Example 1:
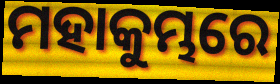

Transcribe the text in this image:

ମହାକୁମ୍ଭରେ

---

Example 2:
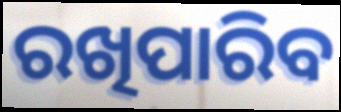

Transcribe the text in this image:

ରଖିପାରିବ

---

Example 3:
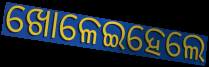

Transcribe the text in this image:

ଖୋଳେଇହେଲେ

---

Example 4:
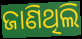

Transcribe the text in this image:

ଜାଣିଥିଲି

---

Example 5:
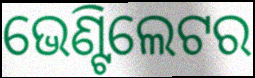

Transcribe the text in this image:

ଭେଣ୍ଟିଲେଟର